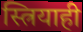
स्त्रियाही